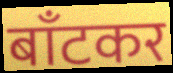
बाँटकर